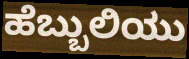
ಹೆಬ್ಬುಲಿಯು